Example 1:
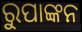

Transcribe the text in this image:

ରୁପାଙ୍କନ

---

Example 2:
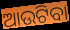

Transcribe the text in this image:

ଆଉଟିବା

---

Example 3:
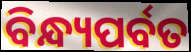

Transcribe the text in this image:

ବିନ୍ଧ୍ୟପର୍ବତ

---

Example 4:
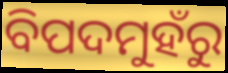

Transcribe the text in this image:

ବିପଦମୁହଁରୁ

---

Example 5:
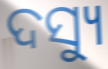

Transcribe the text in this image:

ଦସ୍ୟୁ